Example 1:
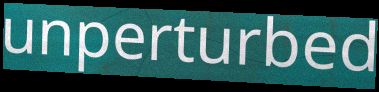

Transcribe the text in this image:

unperturbed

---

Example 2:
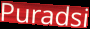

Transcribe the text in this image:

Puradsi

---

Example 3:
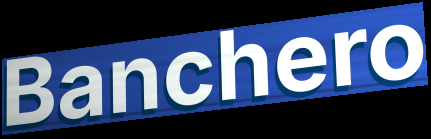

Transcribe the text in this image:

Banchero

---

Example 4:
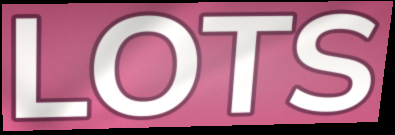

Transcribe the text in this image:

LOTS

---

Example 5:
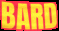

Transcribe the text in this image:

BARD